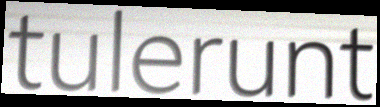
tulerunt